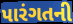
પારંગતની